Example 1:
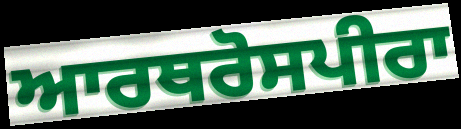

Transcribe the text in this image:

ਆਰਥਰੋਸਪੀਰਾ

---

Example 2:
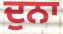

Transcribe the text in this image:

ਦੁਨਾ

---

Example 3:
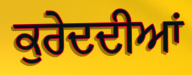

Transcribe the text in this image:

ਕੁਰੇਦਦੀਆਂ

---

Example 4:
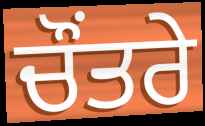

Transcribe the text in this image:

ਚੌਂਤਰੇ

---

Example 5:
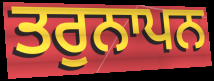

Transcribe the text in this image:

ਤਰੁਨਾਪਨ